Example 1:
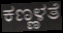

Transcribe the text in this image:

ಕಣ್ಣಳತೆ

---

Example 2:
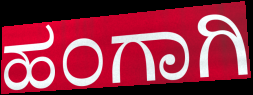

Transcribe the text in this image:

ಹಂಗಾಗಿ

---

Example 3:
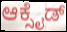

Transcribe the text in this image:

ಆಕ್ಸೈಡ್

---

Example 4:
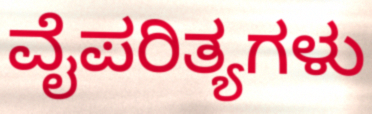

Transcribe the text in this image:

ವೈಪರಿತ್ಯಗಳು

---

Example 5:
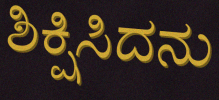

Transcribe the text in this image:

ಶಿಕ್ಷಿಸಿದನು